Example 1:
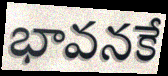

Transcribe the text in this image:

భావనకే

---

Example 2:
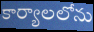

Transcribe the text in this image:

కార్యాలలోను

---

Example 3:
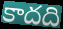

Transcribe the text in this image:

కాదది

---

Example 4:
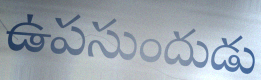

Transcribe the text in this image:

ఉపసుందుడు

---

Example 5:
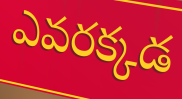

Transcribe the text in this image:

ఎవరక్కడ